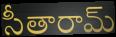
సీతారామ్